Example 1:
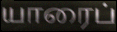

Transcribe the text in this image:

யாரைப்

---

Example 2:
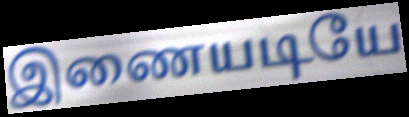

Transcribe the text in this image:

இணையடியே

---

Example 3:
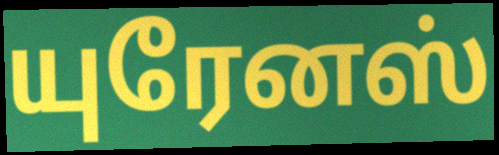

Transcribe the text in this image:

யுரேனஸ்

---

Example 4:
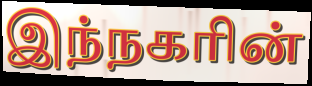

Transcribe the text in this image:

இந்நகரின்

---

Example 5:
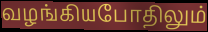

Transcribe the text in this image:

வழங்கியபோதிலும்